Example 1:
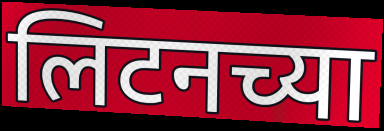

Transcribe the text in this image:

लिटनच्या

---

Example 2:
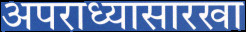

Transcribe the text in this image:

अपराध्यासारखा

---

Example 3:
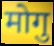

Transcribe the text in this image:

मोगु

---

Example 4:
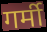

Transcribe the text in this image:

गर्मी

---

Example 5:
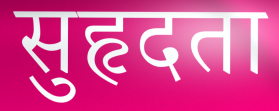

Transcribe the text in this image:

सुहृदता